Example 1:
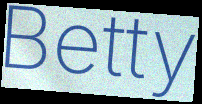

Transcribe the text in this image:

Betty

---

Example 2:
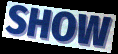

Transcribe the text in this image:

SHOW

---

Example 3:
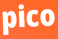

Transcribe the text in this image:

pico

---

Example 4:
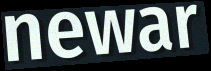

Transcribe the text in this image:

newar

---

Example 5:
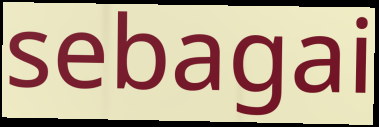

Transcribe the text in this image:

sebagai